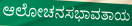
ಆಲೋಚನಸಭಾವತಾಯ